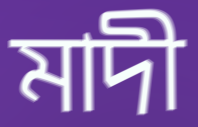
মাদী